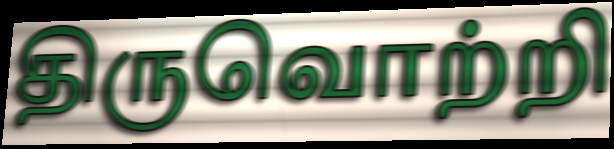
திருவொற்றி